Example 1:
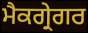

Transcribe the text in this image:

ਮੈਕਗ੍ਰੇਗਰ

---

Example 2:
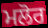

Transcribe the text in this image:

ਮਲੋਰ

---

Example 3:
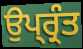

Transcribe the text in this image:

ਉਪ੍ਰ੍ਰੰਤ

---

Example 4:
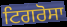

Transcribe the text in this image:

ਟਿਗਰੋਸਾ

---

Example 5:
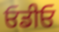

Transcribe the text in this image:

ਓਡੀਓ